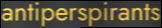
antiperspirants